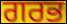
ਗਰਭ